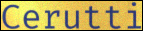
Cerutti